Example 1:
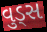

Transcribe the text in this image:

વુડ્સ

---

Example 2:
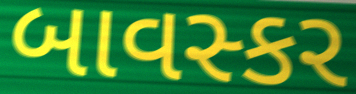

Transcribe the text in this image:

બાવસ્કર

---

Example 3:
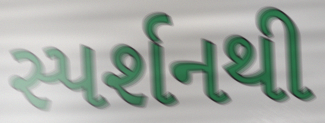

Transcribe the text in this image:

સ્પર્શનથી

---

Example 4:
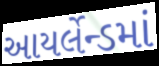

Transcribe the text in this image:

આયર્લેન્ડમાં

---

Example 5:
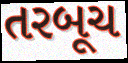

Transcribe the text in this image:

તરબૂચ